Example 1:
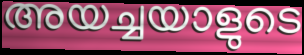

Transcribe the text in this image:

അയച്ചയാളുടെ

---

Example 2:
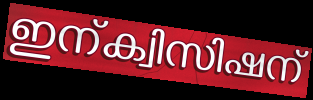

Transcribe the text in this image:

ഇന്ക്വിസിഷന്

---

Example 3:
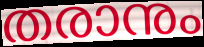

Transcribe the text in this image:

തരാനും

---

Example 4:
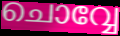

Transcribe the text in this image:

ചൊവ്വേ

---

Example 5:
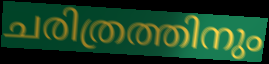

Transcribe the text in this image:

ചരിത്രത്തിനും